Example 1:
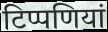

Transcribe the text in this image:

टिप्‍पणियां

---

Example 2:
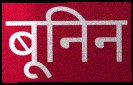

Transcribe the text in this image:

बूनिन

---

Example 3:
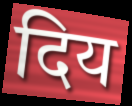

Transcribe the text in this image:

दिय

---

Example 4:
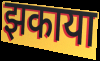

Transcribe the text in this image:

झकाया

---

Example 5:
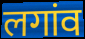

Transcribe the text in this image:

लगांव